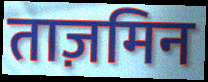
ताज़मिन